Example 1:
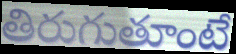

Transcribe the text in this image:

తిరుగుతూంటే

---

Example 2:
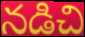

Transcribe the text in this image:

నడిచి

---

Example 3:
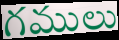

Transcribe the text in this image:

గములు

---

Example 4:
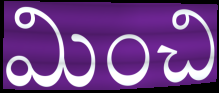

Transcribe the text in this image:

మించి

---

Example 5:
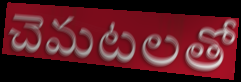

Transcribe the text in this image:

చెమటలతో